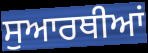
ਸੁਆਰਥੀਆਂ